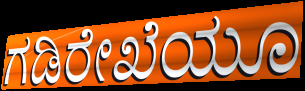
ಗಡಿರೇಖೆಯೂ